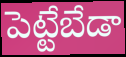
పెట్టేబేడా